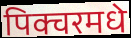
पिक्चरमधे